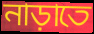
নাড়াতে